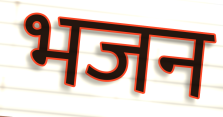
भजन